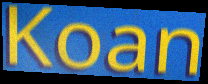
Koan